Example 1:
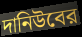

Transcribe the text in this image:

দানিউবের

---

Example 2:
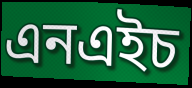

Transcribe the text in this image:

এনএইচ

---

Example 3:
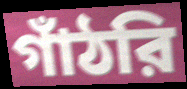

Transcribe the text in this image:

গাঁঠরি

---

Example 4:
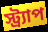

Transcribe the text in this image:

স্ট্র্যাপ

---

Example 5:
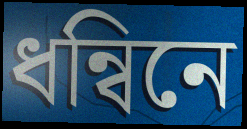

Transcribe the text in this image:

ধন্বিনে